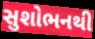
સુશોભનથી